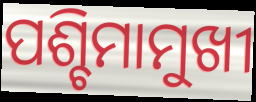
ପଶ୍ଚିମାମୁଖୀ